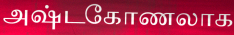
அஷ்டகோணலாக